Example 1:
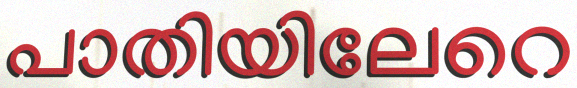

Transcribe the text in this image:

പാതിയിലേറെ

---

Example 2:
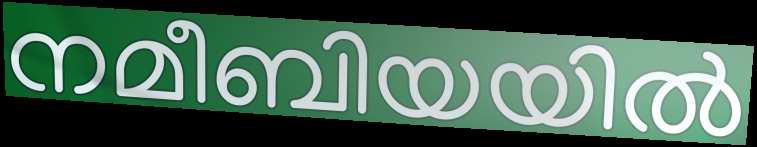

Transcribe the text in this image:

നമീബിയയിൽ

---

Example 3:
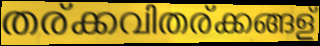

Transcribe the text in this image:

തര്ക്കവിതര്ക്കങ്ങള്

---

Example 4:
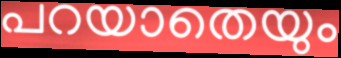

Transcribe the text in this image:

പറയാതെയും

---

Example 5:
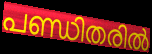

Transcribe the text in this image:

പണ്ഡിതരിൽ